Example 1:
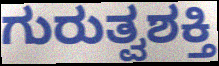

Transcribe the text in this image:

ಗುರುತ್ವಶಕ್ತಿ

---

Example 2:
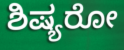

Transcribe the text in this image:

ಶಿಷ್ಯರೋ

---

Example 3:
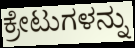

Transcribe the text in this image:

ಕ್ರೇಟುಗಳನ್ನು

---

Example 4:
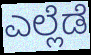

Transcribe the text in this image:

ಎಲ್ಲೆಡೆ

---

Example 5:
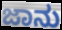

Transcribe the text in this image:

ಜಾನು